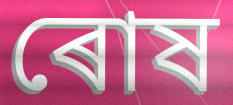
ৰোষ